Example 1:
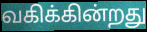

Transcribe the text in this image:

வகிக்கின்றது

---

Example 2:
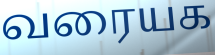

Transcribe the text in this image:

வரையக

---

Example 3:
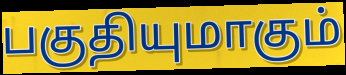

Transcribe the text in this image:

பகுதியுமாகும்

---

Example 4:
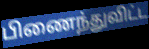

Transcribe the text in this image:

பிணைந்துவிட்ட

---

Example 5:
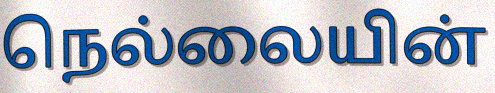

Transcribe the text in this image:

நெல்லையின்